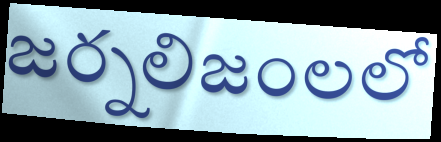
జర్నలిజంలలో